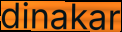
dinakar